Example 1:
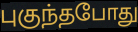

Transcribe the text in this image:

புகுந்தபோது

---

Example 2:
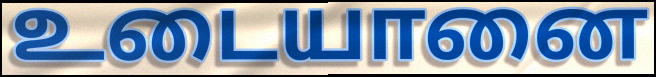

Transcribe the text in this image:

உடையானை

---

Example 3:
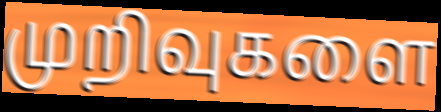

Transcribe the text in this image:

முறிவுகளை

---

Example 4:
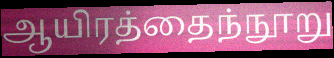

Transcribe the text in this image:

ஆயிரத்தைந்நூறு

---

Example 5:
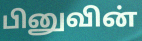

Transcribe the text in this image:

பினுவின்